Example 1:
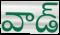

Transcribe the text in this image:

వాడ్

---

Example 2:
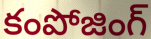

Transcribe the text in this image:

కంపోజింగ్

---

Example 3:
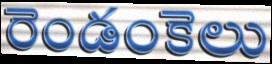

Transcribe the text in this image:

రెండంకెలు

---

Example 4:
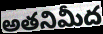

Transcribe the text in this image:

అతనిమీద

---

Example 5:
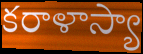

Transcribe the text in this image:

కరాళాస్యా